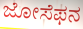
ಜೋಸೆಫನ